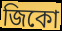
জিকো